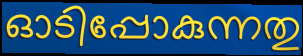
ഓടിപ്പോകുന്നതു